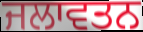
ਜਲਾਵਤਨ